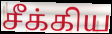
சீக்கிய